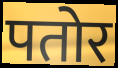
पतोर